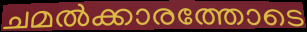
ചമൽക്കാരത്തോടെ